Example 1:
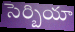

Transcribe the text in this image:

సెర్బియా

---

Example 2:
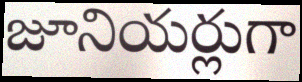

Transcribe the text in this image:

జూనియర్లుగా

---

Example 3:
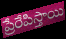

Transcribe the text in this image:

ప్రేరేపిస్తాయి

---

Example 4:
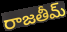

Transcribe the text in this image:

రాజతీమ్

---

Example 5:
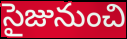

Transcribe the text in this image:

సైజునుంచి